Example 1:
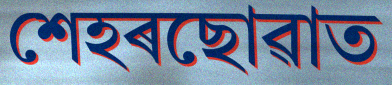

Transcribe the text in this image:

শেহৰছোৱাত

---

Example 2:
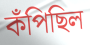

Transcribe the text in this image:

কঁপিছিল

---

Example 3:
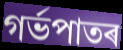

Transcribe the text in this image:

গৰ্ভপাতৰ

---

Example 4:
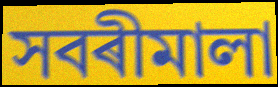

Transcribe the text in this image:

সবৰীমালা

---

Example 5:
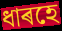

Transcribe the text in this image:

ধাৰহে